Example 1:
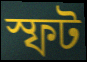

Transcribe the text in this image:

স্ফট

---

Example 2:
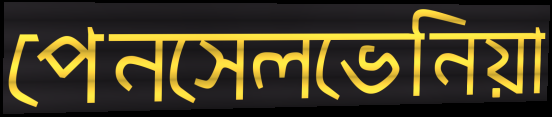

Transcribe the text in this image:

পেনসেলভেনিয়া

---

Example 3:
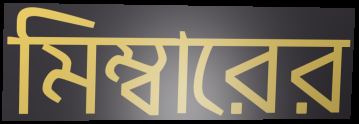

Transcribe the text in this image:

মিম্বারের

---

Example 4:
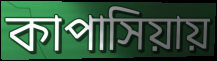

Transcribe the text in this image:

কাপাসিয়ায়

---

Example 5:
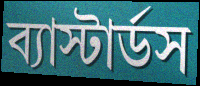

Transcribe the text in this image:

ব্যাস্টার্ডস